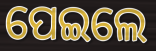
ପେଇଲେ